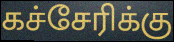
கச்சேரிக்கு